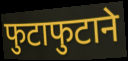
फुटाफुटाने